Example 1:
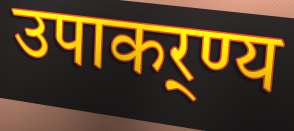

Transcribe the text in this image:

उपाकर्ण्य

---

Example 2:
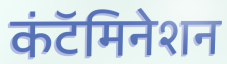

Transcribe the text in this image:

कंटॅमिनेशन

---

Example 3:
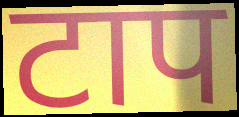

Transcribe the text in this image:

टाप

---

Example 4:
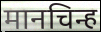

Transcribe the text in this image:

मानचिन्ह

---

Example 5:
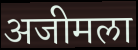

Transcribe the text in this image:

अजीमला